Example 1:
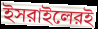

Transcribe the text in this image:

ইসরাইলেরই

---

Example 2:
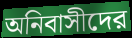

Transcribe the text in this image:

অনিবাসীদের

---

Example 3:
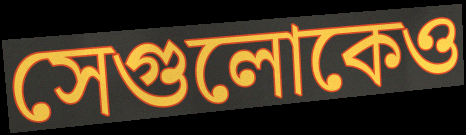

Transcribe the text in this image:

সেগুলোকেও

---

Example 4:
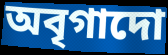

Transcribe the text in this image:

অবৃগাদো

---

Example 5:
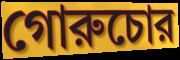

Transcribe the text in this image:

গোরুচোর